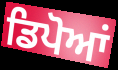
ਡਿਪੋਆਂ